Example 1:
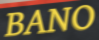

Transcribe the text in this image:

BANO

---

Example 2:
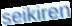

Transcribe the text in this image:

seikiren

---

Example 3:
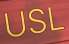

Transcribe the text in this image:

USL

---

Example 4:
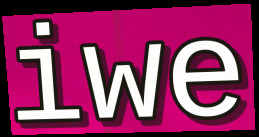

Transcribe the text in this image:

iwe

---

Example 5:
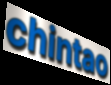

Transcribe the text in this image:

chintao